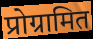
प्रोग्रामित